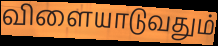
விளையாடுவதும்